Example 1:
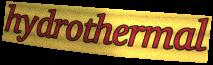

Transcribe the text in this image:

hydrothermal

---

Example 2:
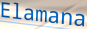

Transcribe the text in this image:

Elamana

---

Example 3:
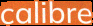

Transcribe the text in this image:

calibre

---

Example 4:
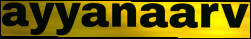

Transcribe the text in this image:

ayyanaarv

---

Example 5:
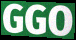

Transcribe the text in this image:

GGO